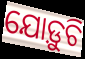
ଯୋଡ଼ୁଚି